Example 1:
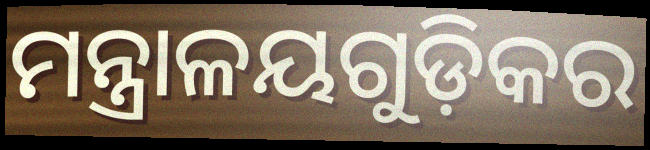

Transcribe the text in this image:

ମନ୍ତ୍ରାଳୟଗୁଡ଼ିକର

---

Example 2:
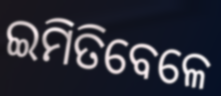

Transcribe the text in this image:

ଇମିତିବେଳେ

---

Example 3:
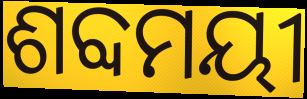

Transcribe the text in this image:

ଶବ୍ଦମୟୀ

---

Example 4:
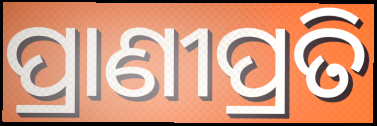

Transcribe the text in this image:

ପ୍ରାଣୀପ୍ରତି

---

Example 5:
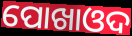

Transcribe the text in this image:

ପୋଖାଓଦ